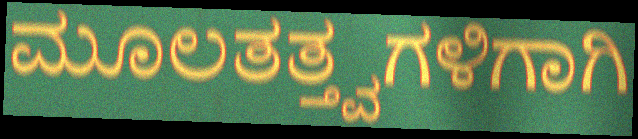
ಮೂಲತತ್ತ್ವಗಳಿಗಾಗಿ